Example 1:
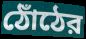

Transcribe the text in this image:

ঠোঁঠের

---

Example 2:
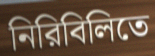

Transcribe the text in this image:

নিরিবিলিতে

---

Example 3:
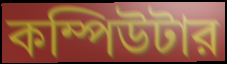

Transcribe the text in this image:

কম্পিউটার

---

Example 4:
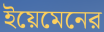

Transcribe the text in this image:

ইয়েমেনের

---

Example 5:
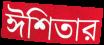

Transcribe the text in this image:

ঈশিতার